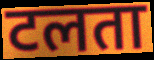
टलता